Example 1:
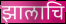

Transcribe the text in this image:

झालाचि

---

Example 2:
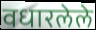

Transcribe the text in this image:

वधारलेले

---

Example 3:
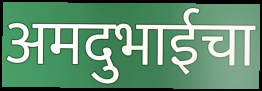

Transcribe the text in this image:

अमदुभाईचा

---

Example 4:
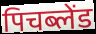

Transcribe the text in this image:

पिचब्लेंड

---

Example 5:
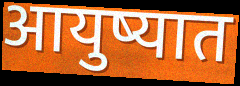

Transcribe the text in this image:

आयुष्यात